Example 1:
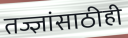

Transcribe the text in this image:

तज्ज्ञांसाठीही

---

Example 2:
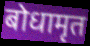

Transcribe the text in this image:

बोधामृत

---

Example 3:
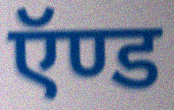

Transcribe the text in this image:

ऍण्ड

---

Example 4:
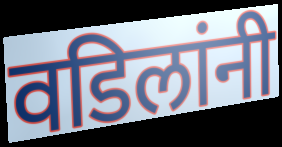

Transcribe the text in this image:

वडिलांनी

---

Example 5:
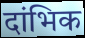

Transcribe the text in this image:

दांभिक